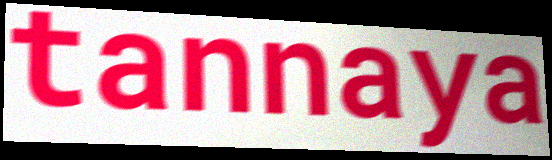
tannaya